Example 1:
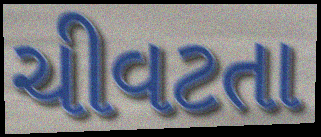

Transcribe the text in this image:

ચીવટતા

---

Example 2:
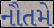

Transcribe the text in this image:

નૌતમે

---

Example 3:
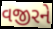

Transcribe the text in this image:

વજીરને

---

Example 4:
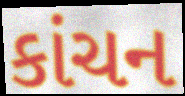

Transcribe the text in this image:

કાંચન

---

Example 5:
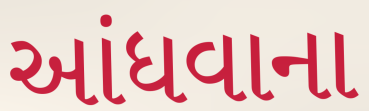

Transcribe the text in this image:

આંધવાના